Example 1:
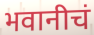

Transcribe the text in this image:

भवानीचं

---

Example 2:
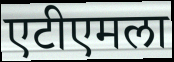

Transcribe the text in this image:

एटीएमला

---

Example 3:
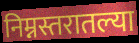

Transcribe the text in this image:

निम्नस्तरातल्या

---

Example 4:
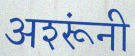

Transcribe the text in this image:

अश्रूंनी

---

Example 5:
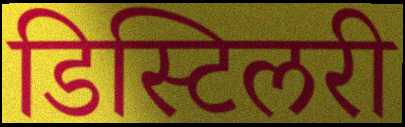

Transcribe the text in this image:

डिस्टिलरी